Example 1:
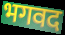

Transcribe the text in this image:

भगवद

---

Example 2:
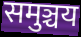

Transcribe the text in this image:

समुञ्चय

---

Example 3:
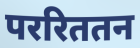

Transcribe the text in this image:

पररिततन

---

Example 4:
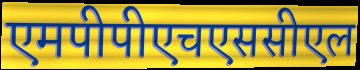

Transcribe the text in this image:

एमपीपीएचएससीएल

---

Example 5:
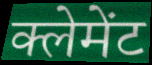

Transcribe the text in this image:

क्लेमेंट